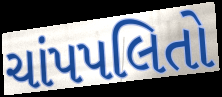
ચાંપપલિતો